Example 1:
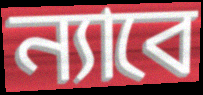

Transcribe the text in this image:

ন্যাবে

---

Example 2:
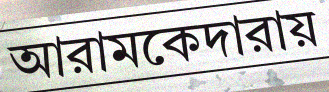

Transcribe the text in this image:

আরামকেদারায়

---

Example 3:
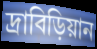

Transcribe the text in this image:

দ্রাবিড়িয়ান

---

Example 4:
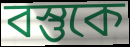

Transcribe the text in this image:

বস্তুকে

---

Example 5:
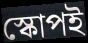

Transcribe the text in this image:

স্কোপই